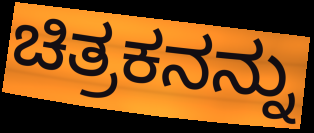
ಚಿತ್ರಕನನ್ನು